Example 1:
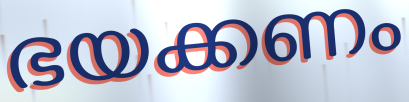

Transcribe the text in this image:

ഭയക്കണം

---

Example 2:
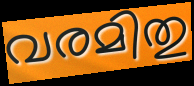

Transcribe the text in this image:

വരമിതു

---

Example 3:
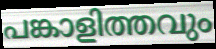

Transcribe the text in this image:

പങ്കാളിത്തവും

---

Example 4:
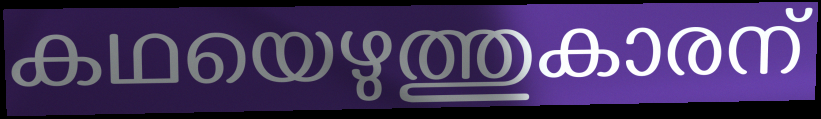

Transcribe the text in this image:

കഥയെഴുത്തുകാരന്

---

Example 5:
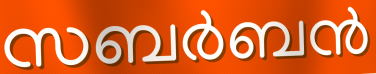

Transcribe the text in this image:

സബർബൻ